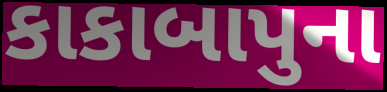
કાકાબાપુના